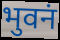
भुवनं